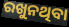
ରଖୁନଥିବା